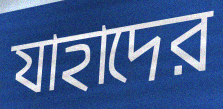
যাহাদের